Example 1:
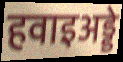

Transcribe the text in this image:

हवाइअड्डे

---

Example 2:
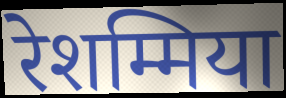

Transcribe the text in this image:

रेशम्मिया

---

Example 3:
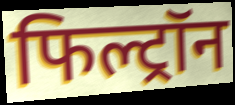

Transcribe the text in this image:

फिल्ट्रॉन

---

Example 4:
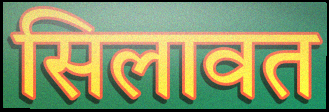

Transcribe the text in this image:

सिलावत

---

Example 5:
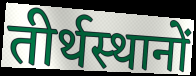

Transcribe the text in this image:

तीर्थस्थानों